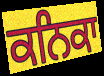
ਕਨਿਕਾ